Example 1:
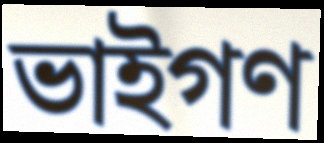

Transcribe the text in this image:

ভাইগণ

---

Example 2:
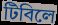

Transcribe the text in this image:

টিবিলে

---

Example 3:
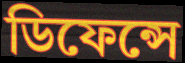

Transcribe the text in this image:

ডিফেন্সে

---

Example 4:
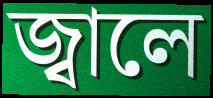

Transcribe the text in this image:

জ্বালে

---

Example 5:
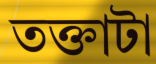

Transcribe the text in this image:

তক্তাটা